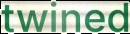
twined